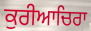
ਕੁਰੀਆਚਿਰਾ